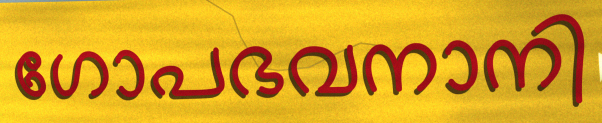
ഗോപഭവനാനി